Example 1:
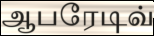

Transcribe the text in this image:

ஆபரேடிவ்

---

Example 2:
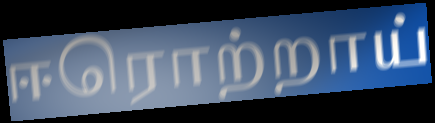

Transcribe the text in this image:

ஈரொற்றாய்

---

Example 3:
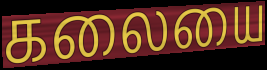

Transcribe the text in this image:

கலையை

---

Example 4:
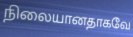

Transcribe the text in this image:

நிலையானதாகவே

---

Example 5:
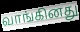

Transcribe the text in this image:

வாங்கினது